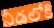
నీడలోకి